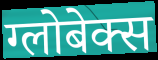
ग्लोबेक्स